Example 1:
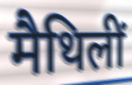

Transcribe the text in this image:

मैथिलीं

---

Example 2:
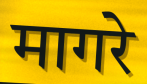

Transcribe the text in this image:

मागरे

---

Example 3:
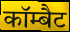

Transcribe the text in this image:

कॉम्बैट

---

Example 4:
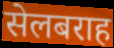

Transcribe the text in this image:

सेलबराह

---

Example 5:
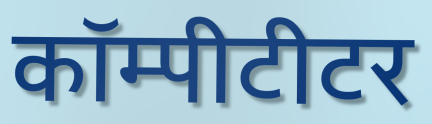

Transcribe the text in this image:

कॉम्पीटीटर